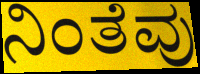
ನಿಂತೆವು